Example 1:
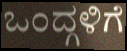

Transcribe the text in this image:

ಒಂದ್ಗಳಿಗೆ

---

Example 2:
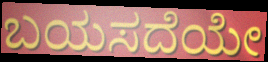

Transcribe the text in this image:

ಬಯಸದೆಯೇ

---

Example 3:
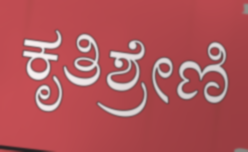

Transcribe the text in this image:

ಕೃತಿಶ್ರೇಣಿ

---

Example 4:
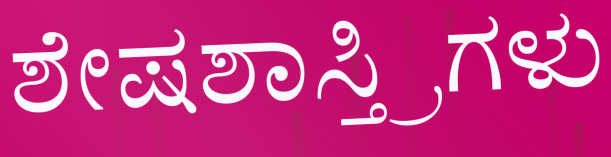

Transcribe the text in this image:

ಶೇಷಶಾಸ್ತ್ರಿಗಳು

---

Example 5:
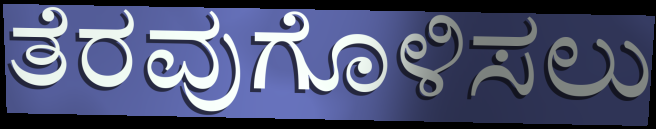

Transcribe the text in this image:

ತೆರವುಗೊಳಿಸಲು